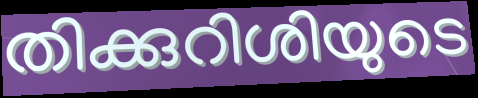
തിക്കുറിശിയുടെ